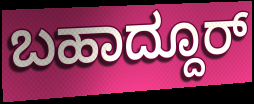
ಬಹಾದ್ದೂರ್